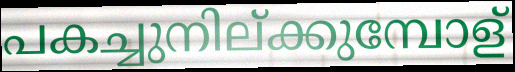
പകച്ചുനില്ക്കുമ്പോള്